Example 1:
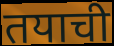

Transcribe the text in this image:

तयाची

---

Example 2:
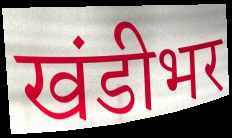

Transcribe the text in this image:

खंडीभर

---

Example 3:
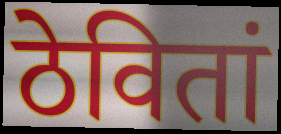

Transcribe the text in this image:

ठेवितां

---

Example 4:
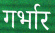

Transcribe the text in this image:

गर्भार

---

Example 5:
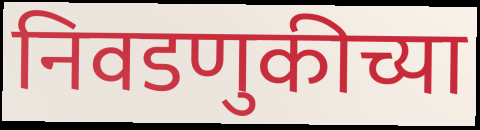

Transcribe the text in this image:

निवडणुकीच्या